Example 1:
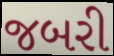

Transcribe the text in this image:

જબરી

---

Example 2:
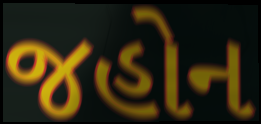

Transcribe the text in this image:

જહોન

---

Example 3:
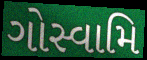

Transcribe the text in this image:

ગોસ્વામિ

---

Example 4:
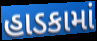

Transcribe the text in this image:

હાડકામાં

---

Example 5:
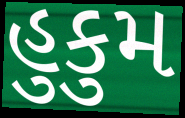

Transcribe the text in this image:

હુકુમ